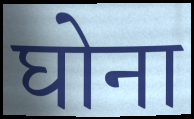
घोना